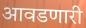
आवडणारी